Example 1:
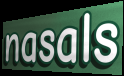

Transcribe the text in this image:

nasals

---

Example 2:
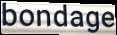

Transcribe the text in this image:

bondage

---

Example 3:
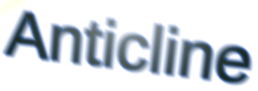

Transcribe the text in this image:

Anticline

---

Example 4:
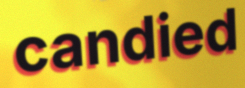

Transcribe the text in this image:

candied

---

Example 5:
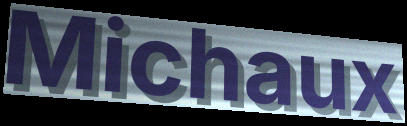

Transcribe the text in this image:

Michaux